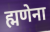
ह्मणेना